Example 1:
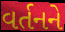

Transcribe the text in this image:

વર્તનને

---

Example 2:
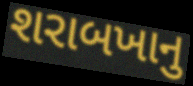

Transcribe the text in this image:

શરાબખાનુ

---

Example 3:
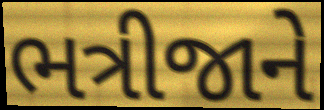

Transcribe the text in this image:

ભત્રીજાને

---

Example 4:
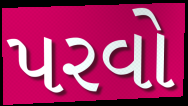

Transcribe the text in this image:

પરવો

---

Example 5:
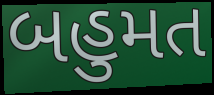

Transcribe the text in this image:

બહુમત